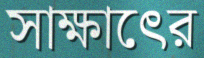
সাক্ষাৎের